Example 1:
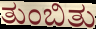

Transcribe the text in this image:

ತುಂಬಿತು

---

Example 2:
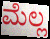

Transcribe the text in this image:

ಮೆಲ್ಲ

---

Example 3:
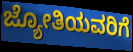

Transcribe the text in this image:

ಜ್ಯೋತಿಯವರಿಗೆ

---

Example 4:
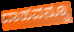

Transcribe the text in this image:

ದಾಹವನ್ನೂ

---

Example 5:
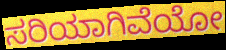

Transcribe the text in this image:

ಸರಿಯಾಗಿವೆಯೋ